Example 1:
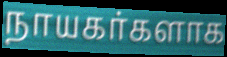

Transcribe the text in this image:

நாயகர்களாக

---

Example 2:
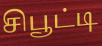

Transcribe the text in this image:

சிபூட்டி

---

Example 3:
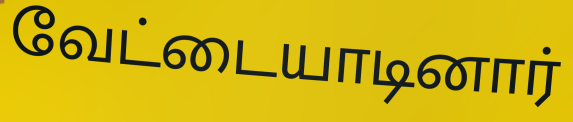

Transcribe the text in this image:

வேட்டையாடினார்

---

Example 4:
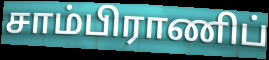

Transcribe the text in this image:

சாம்பிராணிப்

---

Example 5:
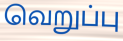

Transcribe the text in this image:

வெறுப்பு